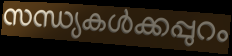
സന്ധ്യകൾക്കപ്പുറം